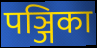
पञ्जिका